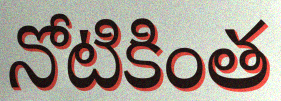
నోటికింత